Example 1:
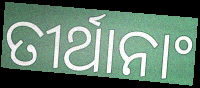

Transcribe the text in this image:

ତୀର୍ଥାନାଂ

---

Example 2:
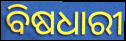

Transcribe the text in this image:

ବିଷଧାରୀ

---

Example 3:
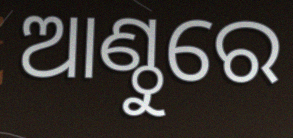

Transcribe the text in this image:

ଆଣ୍ଠୁରେ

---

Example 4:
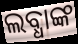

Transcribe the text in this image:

ଲବ୍ଧାଙ୍କ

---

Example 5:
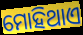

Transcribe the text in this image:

ମୋହିଥାଏ